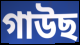
গাউছ